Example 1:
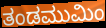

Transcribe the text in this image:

ತಂಡಮುಮಿಂ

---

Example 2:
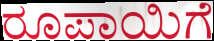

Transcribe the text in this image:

ರೂಪಾಯಿಗೆ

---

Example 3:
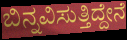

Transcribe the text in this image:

ಬಿನ್ನವಿಸುತ್ತಿದ್ದೇನೆ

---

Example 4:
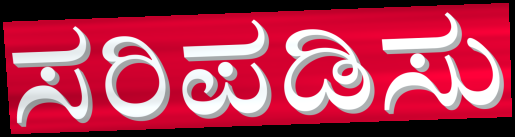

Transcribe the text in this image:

ಸರಿಪಡಿಸು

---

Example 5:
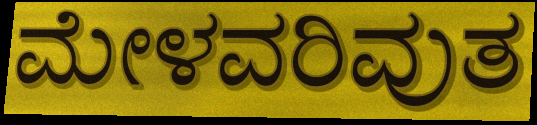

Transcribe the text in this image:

ಮೇಳವರಿವುತ